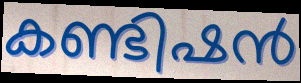
കണ്ടിഷൻ